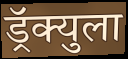
ड्रॅक्युला